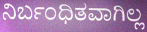
ನಿರ್ಬಂಧಿತವಾಗಿಲ್ಲ